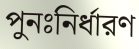
পুনঃনির্ধারণ